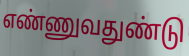
எண்ணுவதுண்டு